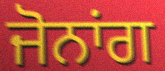
ਜੋਨਾਂਗ